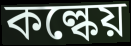
কল্কেয়